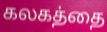
கலகத்தை